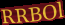
RRBOl